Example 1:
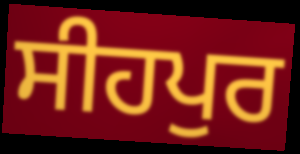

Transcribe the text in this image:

ਸੀਹਪੁਰ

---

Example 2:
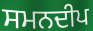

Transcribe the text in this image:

ਸਮਨਦੀਪ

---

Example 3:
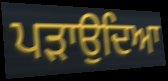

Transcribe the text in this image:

ਪੜਾਉਦਿਆ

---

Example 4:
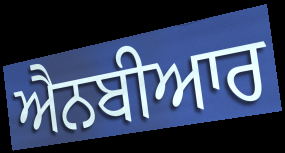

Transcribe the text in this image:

ਐਨਬੀਆਰ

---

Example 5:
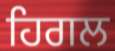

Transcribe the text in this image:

ਹਿਗਲ